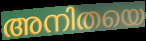
അനിതയെ